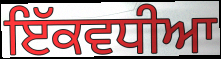
ਇੱਕਵਧੀਆ